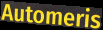
Automeris